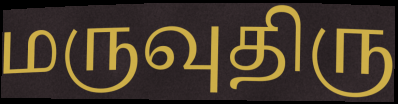
மருவுதிரு